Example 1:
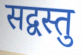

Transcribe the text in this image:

सद्वस्तु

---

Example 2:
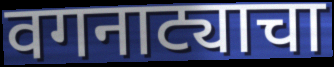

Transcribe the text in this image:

वगनाट्याचा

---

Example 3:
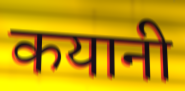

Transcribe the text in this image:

कयानी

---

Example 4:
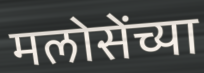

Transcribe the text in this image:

मलोसेंच्या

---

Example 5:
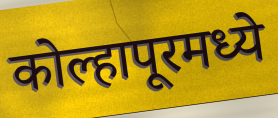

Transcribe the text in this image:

कोल्हापूरमध्ये